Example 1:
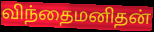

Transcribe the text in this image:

விந்தைமனிதன்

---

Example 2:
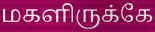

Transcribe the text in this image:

மகளிருக்கே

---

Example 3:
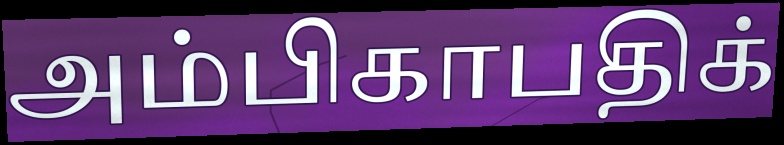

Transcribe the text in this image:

அம்பிகாபதிக்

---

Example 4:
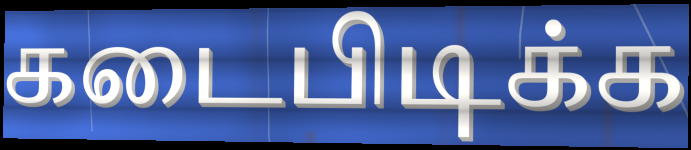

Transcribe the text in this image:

கடைபிடிக்க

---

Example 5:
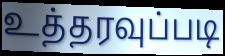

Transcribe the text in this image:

உத்தரவுப்படி